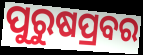
ପୁରୁଷପ୍ରବର